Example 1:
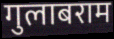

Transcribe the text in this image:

गुलाबराम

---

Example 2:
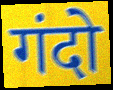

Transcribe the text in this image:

गंदो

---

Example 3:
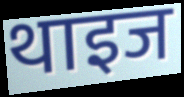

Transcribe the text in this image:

थाइज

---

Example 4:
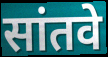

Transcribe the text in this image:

सांतवे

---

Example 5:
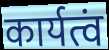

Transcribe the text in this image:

कार्यत्वं